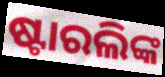
ଷ୍ଟାରଲିଙ୍କ